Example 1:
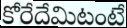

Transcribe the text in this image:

కోరేదేమిటంటే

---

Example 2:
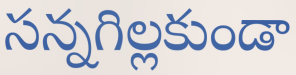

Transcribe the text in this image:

సన్నగిల్లకుండా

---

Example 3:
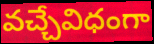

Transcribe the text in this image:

వచ్చేవిధంగా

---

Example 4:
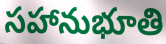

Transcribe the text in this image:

సహానుభూతి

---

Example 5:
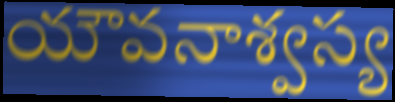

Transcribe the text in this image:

యౌవనాశ్వస్య